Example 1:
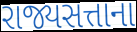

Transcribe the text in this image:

રાજ્યસત્તાના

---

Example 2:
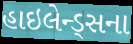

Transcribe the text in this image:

હાઇલેન્ડ્સના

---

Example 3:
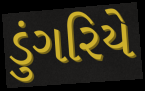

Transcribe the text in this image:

ડુંગરિયે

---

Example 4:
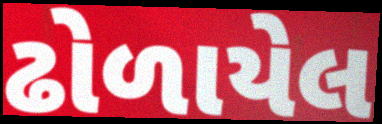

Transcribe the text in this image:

ઢોળાયેલ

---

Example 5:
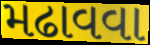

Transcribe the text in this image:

મઢાવવા